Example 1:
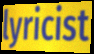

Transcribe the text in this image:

lyricist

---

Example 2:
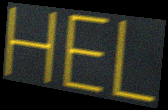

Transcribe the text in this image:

HEL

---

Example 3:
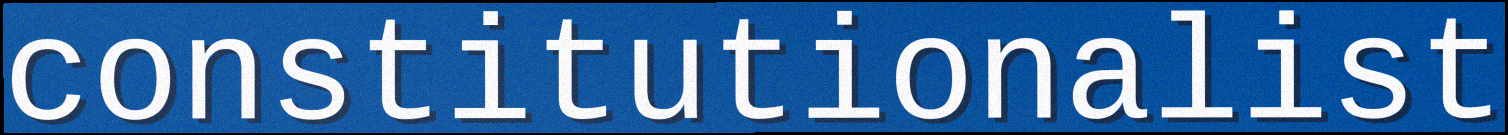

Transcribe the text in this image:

constitutionalist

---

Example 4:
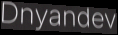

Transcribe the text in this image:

Dnyandev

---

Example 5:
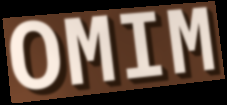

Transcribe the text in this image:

OMIM